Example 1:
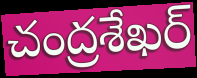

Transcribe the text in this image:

చంద్రశేఖర్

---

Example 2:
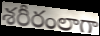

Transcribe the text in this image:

శరీరంలాగా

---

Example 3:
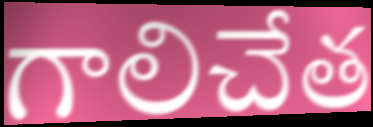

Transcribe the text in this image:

గాలిచేత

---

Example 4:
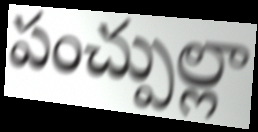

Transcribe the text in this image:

పంచ్పుల్లా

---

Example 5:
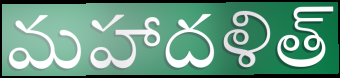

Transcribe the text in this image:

మహాదళిత్